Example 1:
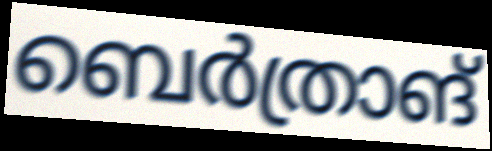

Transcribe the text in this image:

ബെർത്രാങ്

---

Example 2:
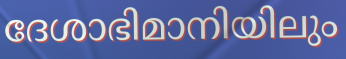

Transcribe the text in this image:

ദേശാഭിമാനിയിലും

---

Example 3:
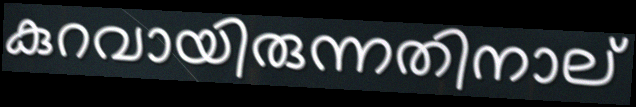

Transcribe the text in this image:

കുറവായിരുന്നതിനാല്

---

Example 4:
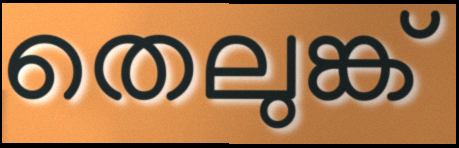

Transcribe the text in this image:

തെലുങ്ക്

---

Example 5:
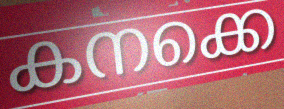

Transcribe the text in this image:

കനക്കെ